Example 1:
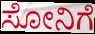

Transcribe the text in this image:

ಸೋನಿಗೆ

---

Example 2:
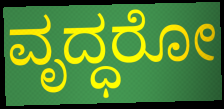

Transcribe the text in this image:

ವೃದ್ಧರೋ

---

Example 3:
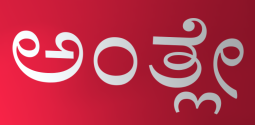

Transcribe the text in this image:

ಅಂತ್ಲೇ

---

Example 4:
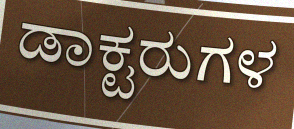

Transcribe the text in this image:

ಡಾಕ್ಟರುಗಳ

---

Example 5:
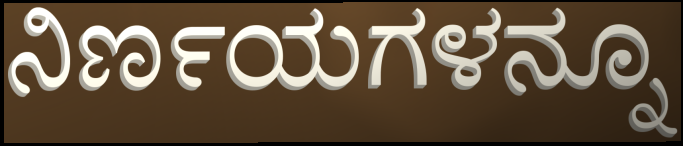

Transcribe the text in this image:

ನಿರ್ಣಯಗಳನ್ನೂ